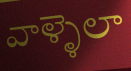
వాళ్ళెలా